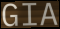
GIA